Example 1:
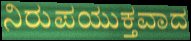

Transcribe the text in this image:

ನಿರುಪಯುಕ್ತವಾದ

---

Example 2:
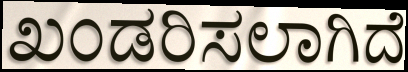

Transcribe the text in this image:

ಖಂಡರಿಸಲಾಗಿದೆ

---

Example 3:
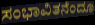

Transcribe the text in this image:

ಸಂಭಾವಿತನೆಂದೂ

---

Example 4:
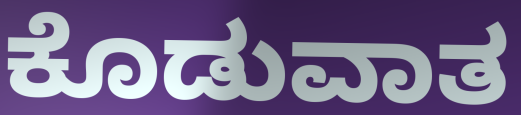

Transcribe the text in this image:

ಕೊಡುವಾತ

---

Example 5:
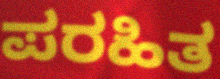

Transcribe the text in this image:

ಪರಹಿತ